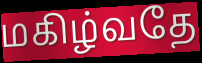
மகிழ்வதே